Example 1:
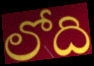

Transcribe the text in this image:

లోది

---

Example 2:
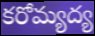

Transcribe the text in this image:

కరోమ్యద్య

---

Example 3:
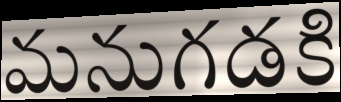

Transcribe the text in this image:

మనుగడకి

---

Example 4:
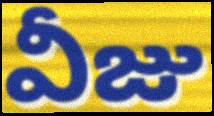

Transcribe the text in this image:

వీజు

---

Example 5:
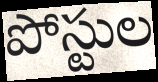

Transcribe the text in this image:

పోస్టుల